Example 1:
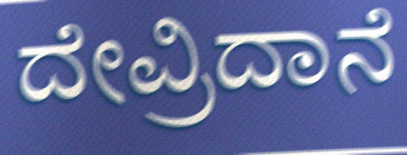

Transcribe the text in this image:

ದೇವ್ರಿದಾನೆ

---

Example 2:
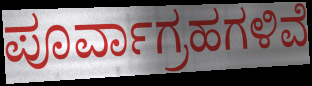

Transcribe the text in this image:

ಪೂರ್ವಾಗ್ರಹಗಳಿವೆ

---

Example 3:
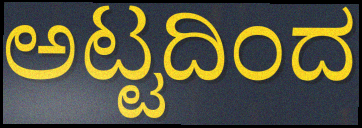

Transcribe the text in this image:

ಅಟ್ಟದಿಂದ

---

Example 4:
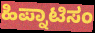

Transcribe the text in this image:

ಹಿಪ್ನಾಟಿಸಂ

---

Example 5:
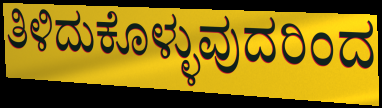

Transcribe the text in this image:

ತಿಳಿದುಕೊಳ್ಳುವುದರಿಂದ